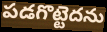
పడగొట్టెదను